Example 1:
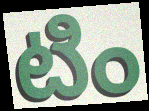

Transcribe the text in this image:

టిం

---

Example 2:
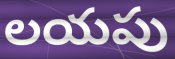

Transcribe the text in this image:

లయపు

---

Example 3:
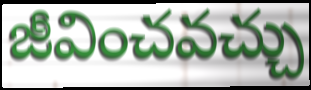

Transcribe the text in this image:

జీవించవచ్చు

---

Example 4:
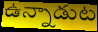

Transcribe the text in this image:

ఉన్నాడుట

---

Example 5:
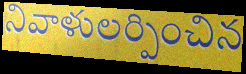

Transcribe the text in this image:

నివాళులర్పించిన